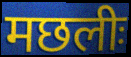
मछलीः